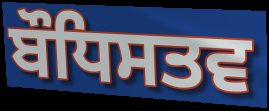
ਬੌਧਿਸਤਵ